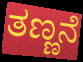
ತಣ್ಣನೆ